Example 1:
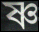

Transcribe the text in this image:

ষ্ণ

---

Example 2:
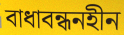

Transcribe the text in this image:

বাধাবন্ধনহীন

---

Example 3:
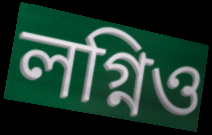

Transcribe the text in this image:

লগ্নিও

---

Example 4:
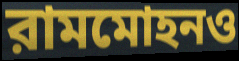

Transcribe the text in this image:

রামমোহনও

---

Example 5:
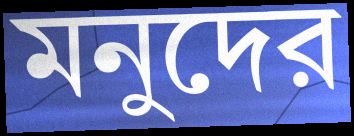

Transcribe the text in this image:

মনুদের